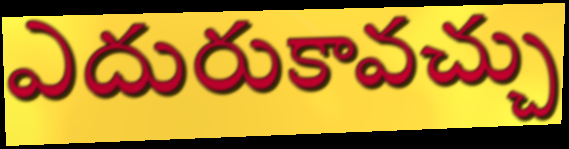
ఎదురుకావచ్చు